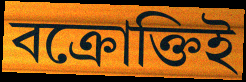
বক্রোক্তিই